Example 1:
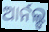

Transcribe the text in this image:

ଆର୍ନଲ୍ଡ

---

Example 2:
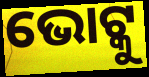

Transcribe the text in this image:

ଭୋଟ୍କୁ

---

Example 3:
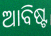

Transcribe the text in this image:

ଆବିଷ୍ଟ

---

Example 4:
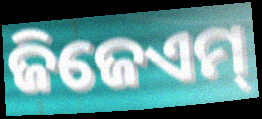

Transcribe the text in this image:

ଜିଜେଏମ୍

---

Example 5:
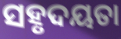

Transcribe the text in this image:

ସହୃଦୟତା